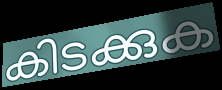
കിടക്കുക